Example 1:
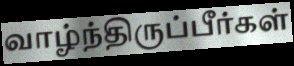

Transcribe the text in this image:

வாழ்ந்திருப்பீர்கள்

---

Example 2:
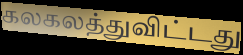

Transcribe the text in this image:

கலகலத்துவிட்டது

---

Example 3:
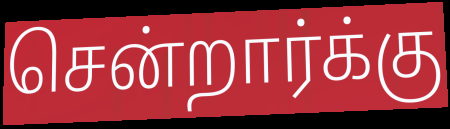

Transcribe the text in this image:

சென்றார்க்கு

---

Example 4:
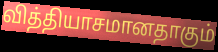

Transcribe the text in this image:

வித்தியாசமானதாகும்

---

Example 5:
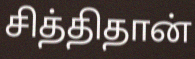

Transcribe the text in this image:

சித்திதான்